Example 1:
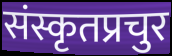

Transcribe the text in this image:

संस्कृतप्रचुर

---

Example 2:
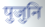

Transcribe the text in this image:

पुजुनि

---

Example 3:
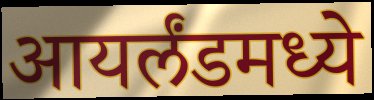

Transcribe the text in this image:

आयर्लंडमध्ये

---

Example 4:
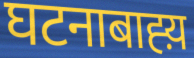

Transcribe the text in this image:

घटनाबाह्य़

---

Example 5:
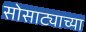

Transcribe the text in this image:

सोसाट्याच्या